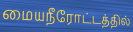
மையநீரோட்டத்தில்